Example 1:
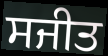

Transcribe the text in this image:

ਸਜੀਤ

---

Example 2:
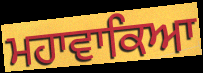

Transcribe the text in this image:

ਮਹਾਵਾਕਿਆ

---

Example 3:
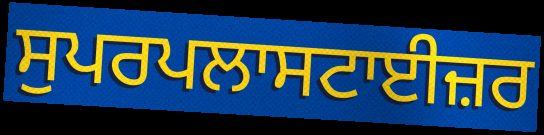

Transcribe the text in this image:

ਸੁਪਰਪਲਾਸਟਾਈਜ਼ਰ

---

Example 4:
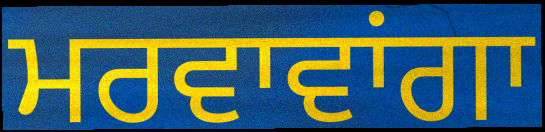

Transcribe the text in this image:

ਮਰਵਾਵਾਂਗਾ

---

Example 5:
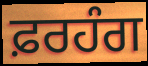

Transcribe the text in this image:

ਫ਼ਰਹੰਗ